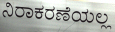
ನಿರಾಕರಣೆಯಲ್ಲ